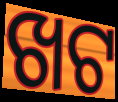
ଖଟ